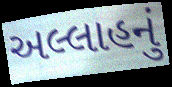
અલ્લાહનું